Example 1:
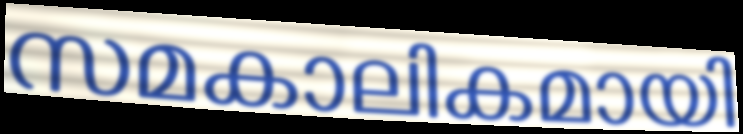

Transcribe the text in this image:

സമകാലികമായി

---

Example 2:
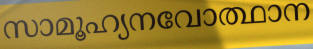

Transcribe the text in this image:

സാമൂഹ്യനവോത്ഥാന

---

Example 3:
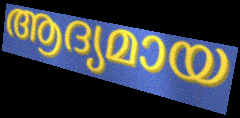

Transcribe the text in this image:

ആദ്യമായ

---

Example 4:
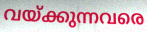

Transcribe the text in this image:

വയ്ക്കുന്നവരെ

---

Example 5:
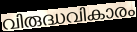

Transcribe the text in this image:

വിരുദ്ധവികാരം